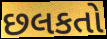
છલકતો